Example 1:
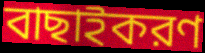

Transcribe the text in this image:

বাছাইকরণ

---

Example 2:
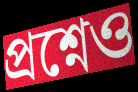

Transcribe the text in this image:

প্রশ্নেও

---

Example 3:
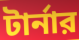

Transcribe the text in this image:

টার্নার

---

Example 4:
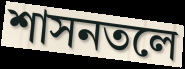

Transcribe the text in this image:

শাসনতলে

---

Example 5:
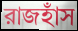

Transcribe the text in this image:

রাজহাঁস